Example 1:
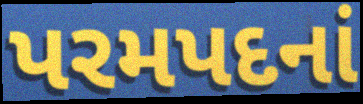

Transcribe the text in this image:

પરમપદનાં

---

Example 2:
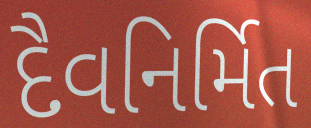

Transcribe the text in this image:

દૈવનિર્મિત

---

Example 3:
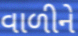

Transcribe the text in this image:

વાળીને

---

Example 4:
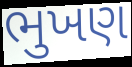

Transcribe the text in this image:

ભુખણ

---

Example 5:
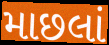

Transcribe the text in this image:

માછલાં